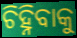
ଚିହ୍ନିବାକୁ